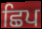
ਛਿਪ